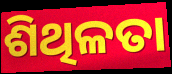
ଶିଥିଳତା